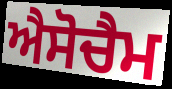
ਐਸੋਚੈਮ